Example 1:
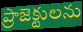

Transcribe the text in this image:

ప్రాజెక్టులను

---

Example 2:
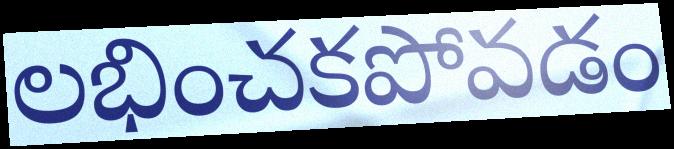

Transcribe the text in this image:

లభించకపోవడం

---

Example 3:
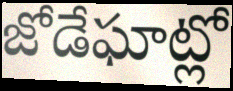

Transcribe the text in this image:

జోడేఘాట్లో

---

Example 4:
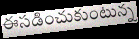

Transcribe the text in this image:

ఈసడించుకుంటున్న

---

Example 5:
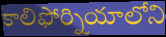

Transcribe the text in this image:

కాలిఫోర్నియాలోని